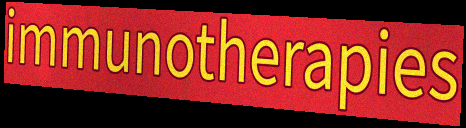
immunotherapies